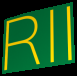
RII